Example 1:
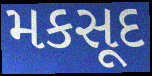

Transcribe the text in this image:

મકસૂદ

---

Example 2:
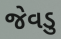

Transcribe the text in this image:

જેવડુ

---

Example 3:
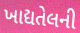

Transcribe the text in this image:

ખાદ્યતેલની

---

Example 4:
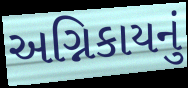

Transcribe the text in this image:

અગ્નિકાયનું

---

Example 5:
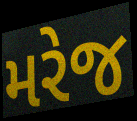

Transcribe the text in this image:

મરેજ